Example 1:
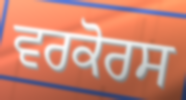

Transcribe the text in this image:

ਵਰਕੋਰਸ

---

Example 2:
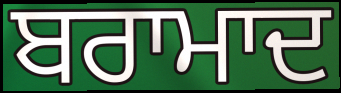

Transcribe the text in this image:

ਬਰਾਮਾਦ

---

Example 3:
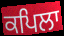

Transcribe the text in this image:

ਕਪਿਲਾ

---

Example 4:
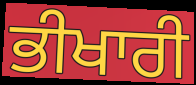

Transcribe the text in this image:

ਭੀਖਾਰੀ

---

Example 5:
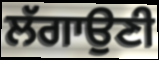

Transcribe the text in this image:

ਲੱਗਾਉਣੀ